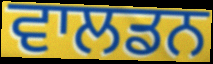
ਵਾਲਡਨ